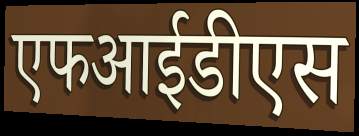
एफआईडीएस